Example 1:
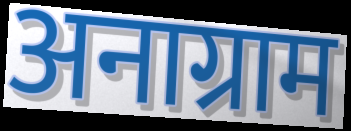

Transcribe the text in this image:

अनाग्राम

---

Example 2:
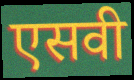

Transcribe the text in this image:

एसवी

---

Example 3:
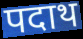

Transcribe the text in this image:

पदाथ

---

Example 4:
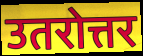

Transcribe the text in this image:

उतरोत्तर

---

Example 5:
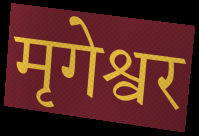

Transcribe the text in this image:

मृगेश्वर